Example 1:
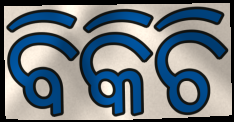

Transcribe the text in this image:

ବିକିଚି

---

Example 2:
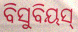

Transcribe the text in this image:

ବିସୁବିୟସ୍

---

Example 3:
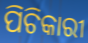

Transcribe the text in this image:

ପିଚିକାରୀ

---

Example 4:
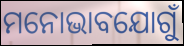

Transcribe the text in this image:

ମନୋଭାବଯୋଗୁଁ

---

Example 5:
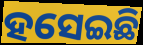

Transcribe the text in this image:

ହସେଇଛି